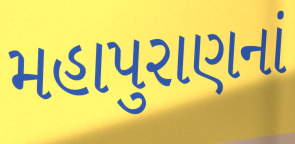
મહાપુરાણનાં